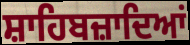
ਸ਼ਾਹਿਬਜ਼ਾਦਿਆਂ